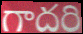
గాదరి